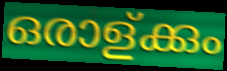
ഒരാള്ക്കും